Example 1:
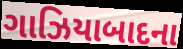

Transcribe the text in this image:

ગાઝિયાબાદના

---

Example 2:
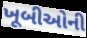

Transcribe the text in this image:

ખૂબીઓની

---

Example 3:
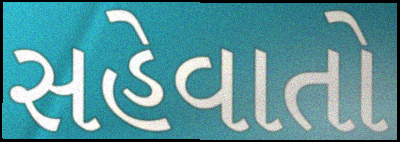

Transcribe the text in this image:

સહેવાતો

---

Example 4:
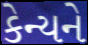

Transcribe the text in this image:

કેન્યને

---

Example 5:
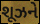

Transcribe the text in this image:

શૂઝને